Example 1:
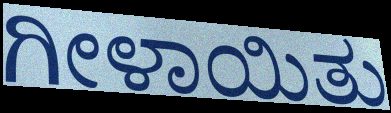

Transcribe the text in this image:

ಗೀಳಾಯಿತು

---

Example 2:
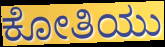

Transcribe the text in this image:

ಕೋತಿಯು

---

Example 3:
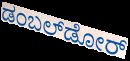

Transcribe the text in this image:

ಡಂಬಲ್‌ಡೋರ್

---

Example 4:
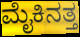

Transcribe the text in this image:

ಮೈಕಿನತ್ತ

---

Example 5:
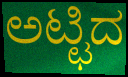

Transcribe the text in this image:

ಅಟ್ಟಿದ